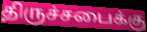
திருச்சபைக்கு